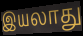
இயலாது